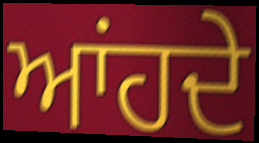
ਆਂਹਦੇ